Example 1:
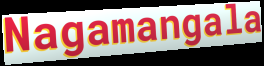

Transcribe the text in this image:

Nagamangala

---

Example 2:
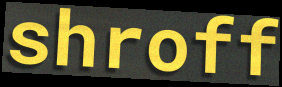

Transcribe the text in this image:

shroff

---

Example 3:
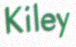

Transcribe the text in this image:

Kiley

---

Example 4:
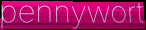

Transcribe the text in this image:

pennywort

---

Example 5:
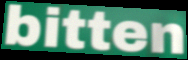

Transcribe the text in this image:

bitten